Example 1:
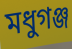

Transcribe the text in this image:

মধুগঞ্জ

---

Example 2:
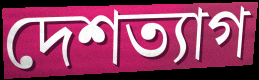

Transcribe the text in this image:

দেশত্যাগ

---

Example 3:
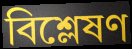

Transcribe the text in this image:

বিশ্লেষণ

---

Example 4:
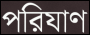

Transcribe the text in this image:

পরিযাণ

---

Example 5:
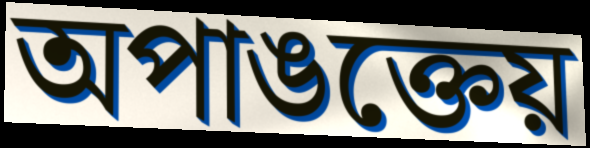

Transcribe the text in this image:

অপাঙক্তেয়